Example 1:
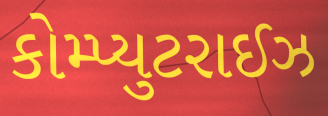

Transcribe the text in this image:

કોમ્પ્યુટરાઈઝ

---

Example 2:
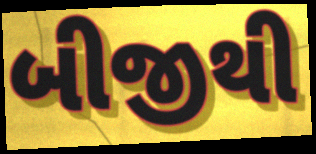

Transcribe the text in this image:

બીજીથી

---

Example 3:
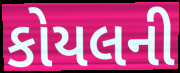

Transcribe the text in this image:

કોયલની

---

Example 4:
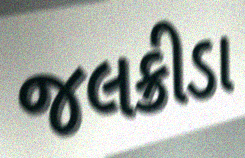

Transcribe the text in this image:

જલક્રીડા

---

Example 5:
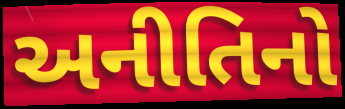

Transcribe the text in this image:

અનીતિનો